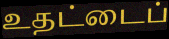
உதட்டைப்